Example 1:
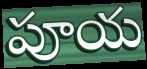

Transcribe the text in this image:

పూయ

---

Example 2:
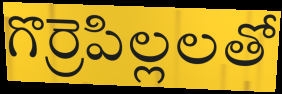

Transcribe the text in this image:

గొర్రెపిల్లలతో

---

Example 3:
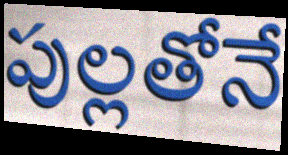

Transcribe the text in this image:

పుల్లతోనే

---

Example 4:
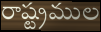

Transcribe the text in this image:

రాష్ట్రముల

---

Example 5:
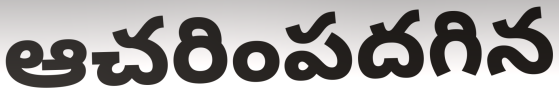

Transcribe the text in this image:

ఆచరింపదగిన